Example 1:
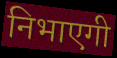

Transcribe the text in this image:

निभाएगी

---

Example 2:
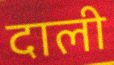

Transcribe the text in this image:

दाली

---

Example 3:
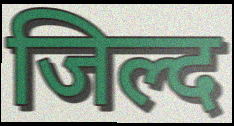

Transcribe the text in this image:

जिल्द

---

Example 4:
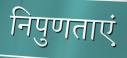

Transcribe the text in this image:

निपुणताएं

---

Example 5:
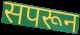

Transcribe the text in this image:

सपरून